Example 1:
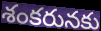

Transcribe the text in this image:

శంకరునకు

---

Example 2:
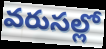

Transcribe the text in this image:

వరుసల్లో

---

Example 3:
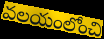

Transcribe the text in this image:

వలయంలోంచి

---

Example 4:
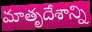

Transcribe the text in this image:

మాతృదేశాన్ని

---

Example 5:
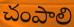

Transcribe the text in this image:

చంపాలి